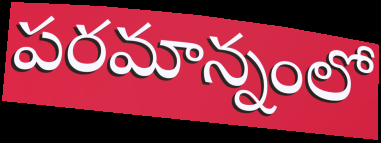
పరమాన్నంలో